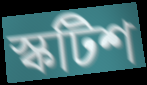
স্কটিশ